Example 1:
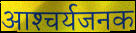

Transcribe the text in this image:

आश्‍चर्यजनक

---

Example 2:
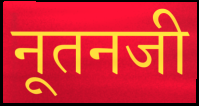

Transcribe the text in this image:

नूतनजी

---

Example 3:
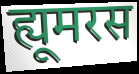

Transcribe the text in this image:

ह्यूमरस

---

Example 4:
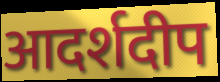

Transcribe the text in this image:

आदर्शदीप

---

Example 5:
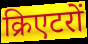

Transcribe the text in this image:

क्रिएटरों